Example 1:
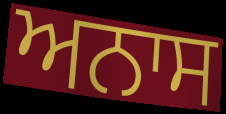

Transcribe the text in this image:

ਅਨਾਸ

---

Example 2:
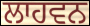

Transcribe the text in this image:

ਲਾਹਵਨ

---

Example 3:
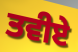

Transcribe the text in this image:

ਤਵੀਏ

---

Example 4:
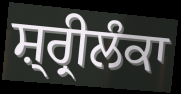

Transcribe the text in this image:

ਸ਼੍ਰ੍ਰੀਲੰਕਾ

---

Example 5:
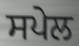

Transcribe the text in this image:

ਸਪੇਲ